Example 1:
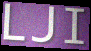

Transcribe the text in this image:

LJI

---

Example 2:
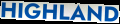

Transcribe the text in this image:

HIGHLAND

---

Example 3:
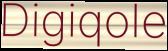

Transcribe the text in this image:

Digiqole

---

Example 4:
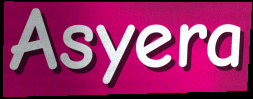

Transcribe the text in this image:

Asyera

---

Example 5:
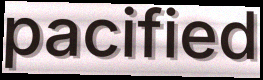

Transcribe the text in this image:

pacified